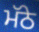
ਮੱਠੇ